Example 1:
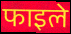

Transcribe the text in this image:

फाइले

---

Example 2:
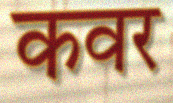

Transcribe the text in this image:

कवर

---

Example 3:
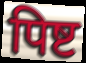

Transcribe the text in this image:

पिष्ट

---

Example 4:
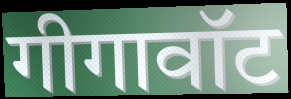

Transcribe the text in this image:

गीगावॉट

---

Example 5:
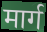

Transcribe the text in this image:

मार्ग